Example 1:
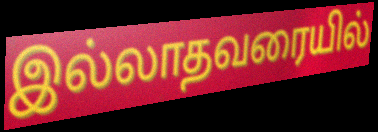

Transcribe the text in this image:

இல்லாதவரையில்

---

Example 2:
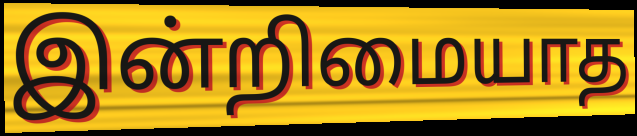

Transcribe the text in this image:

இன்றிமையாத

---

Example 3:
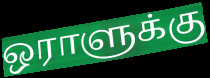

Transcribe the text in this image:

ஒராளுக்கு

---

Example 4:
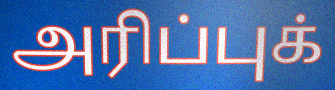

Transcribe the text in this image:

அரிப்புக்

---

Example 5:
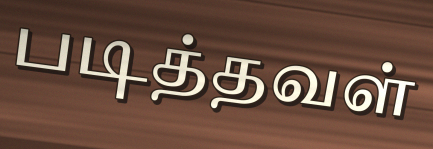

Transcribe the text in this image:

படித்தவள்